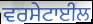
ਵਰਸੇਟਾਈਲ